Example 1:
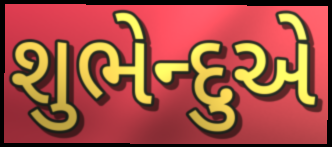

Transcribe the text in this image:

શુભેન્દુએ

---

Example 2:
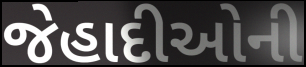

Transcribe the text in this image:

જેહાદીઓની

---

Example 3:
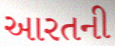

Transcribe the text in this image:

આરતની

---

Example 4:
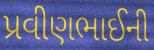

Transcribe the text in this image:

પ્રવીણભાઈની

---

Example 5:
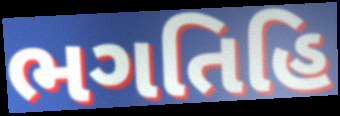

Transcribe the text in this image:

ભગતિહિ